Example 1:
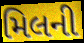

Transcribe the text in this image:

મિલની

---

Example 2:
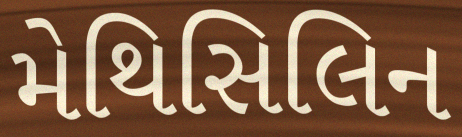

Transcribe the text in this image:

મેથિસિલિન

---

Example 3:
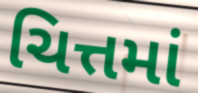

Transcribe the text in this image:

ચિત્તમાં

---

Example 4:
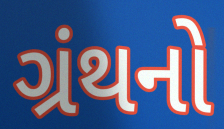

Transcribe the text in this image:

ગ્રંથનો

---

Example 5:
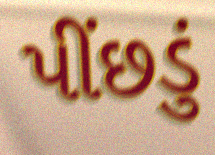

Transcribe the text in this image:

પીંછડું